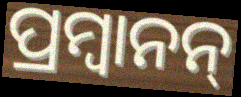
ପ୍ରମ୍ବାନନ୍